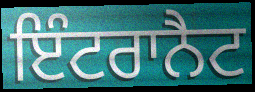
ਇੰਟਰਾਨੈਟ